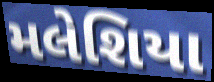
મલેશિયા